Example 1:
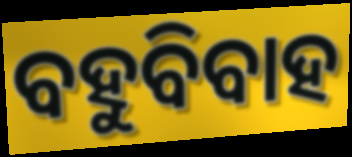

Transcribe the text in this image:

ବହୁବିବାହ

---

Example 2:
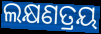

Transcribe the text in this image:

ଲକ୍ଷଣତ୍ରୟ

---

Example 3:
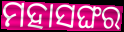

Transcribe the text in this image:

ମହାସଙ୍ଘର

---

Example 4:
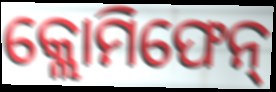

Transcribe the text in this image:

କ୍ଲୋମିଫେନ୍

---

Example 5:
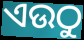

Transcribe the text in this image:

ଏଉଠୁ